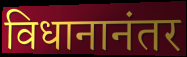
विधानानंतर